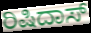
ರಿಷಿದಾಸ್